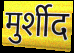
मुर्शीद